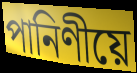
পানিণীয়ে